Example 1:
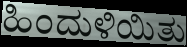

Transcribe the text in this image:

ಹಿಂದುಳಿಯಿತು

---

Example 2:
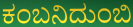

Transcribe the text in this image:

ಕಂಬನಿದುಂಬಿ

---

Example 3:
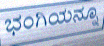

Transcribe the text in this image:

ಭಂಗಿಯನ್ನೂ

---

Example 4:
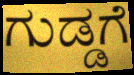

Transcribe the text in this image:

ಗುಡ್ಡಗೆ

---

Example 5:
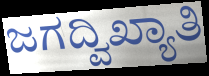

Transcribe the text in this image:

ಜಗದ್ವಿಖ್ಯಾತಿ